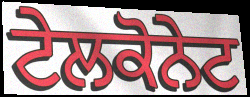
ਟੇਲਕੋਨੇਟ